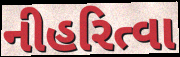
નીહરિત્વા